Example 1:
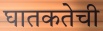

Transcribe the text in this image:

घातकतेची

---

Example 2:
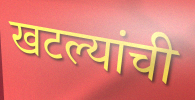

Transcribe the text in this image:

खटल्यांची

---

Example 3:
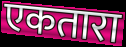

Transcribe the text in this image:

एकतारा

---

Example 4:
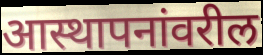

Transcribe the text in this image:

आस्थापनांवरील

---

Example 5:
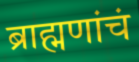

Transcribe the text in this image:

ब्राह्मणांचं